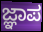
ಜ್ಞಾಪ